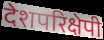
देशपरिक्षेपी